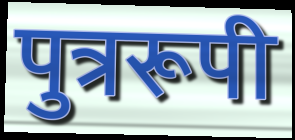
पुत्ररूपी